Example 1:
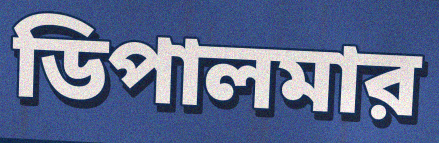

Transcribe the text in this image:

ডিপালমার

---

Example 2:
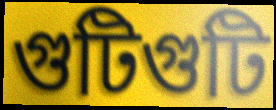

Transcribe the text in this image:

গুটিগুটি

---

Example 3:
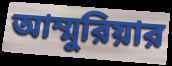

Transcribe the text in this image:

আম্মুরিয়ার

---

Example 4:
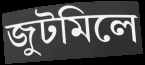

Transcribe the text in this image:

জুটমিলে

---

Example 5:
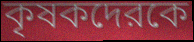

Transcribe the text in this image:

কৃষকদেরকে